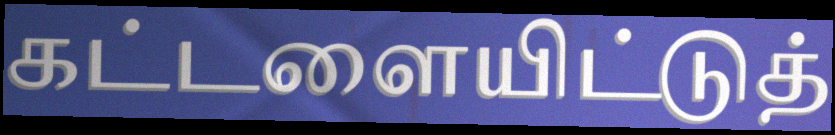
கட்டளையிட்டுத்